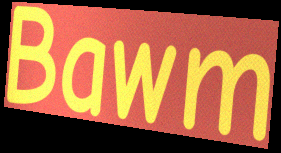
Bawm